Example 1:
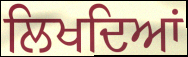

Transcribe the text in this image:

ਲਿਖਦਿਆਂ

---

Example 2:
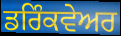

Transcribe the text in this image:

ਡਰਿੰਕਵੇਅਰ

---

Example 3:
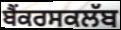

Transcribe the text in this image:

ਬੈਂਕਰਸਕਲੱਬ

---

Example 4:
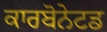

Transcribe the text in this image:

ਕਾਰਬੋਨੇਟਡ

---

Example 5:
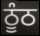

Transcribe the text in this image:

ਠੂੰਠ